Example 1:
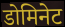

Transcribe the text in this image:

डोमिनेट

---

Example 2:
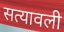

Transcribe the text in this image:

सत्यावली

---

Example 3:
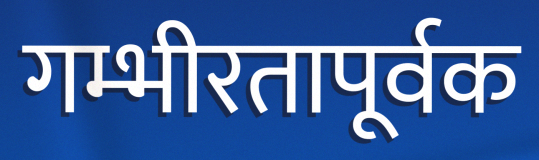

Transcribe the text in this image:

गम्भीरतापूर्वक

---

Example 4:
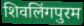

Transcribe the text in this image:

शिवलिंगपुरम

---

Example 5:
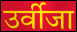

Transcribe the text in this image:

उर्वीजा